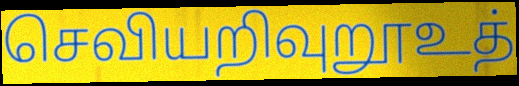
செவியறிவுறூஉத்